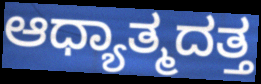
ಆಧ್ಯಾತ್ಮದತ್ತ